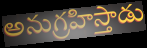
అనుగ్రహిస్తాడు